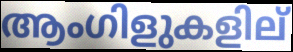
ആംഗിളുകളില്